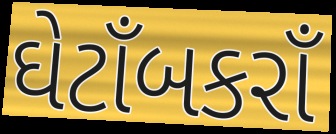
ઘેટાઁબકરાઁ